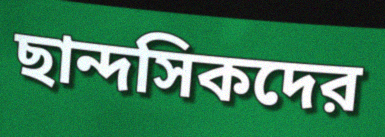
ছান্দসিকদের